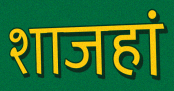
शाजहां